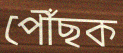
পৌঁছক